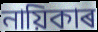
নায়িকাৰ